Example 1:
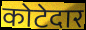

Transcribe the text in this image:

कोटेदार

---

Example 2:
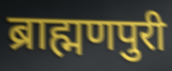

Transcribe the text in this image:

ब्राह्मणपुरी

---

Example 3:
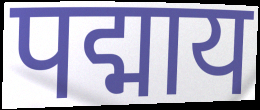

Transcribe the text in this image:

पद्माय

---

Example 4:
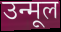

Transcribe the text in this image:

उन्मूल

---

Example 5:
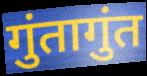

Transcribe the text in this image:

गुंतागुंत